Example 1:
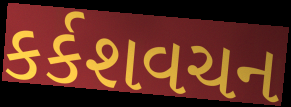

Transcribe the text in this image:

કર્કશવચન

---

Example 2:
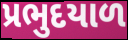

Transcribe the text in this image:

પ્રભુદયાળ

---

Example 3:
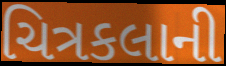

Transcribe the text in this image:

ચિત્રકલાની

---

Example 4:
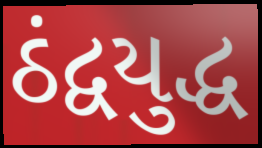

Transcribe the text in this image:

ઠંદ્વયુદ્ધ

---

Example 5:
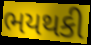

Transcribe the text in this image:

ભયથકી